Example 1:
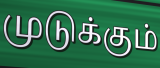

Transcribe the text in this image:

முடுக்கும்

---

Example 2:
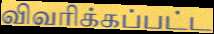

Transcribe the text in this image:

விவரிக்கப்பட்ட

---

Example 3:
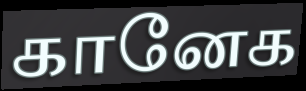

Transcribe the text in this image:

கானேக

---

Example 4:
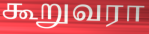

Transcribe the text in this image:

கூறுவரா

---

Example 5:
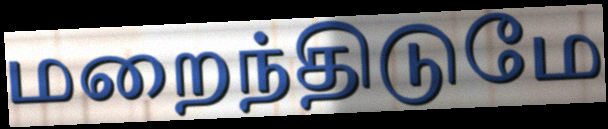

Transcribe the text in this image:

மறைந்திடுமே